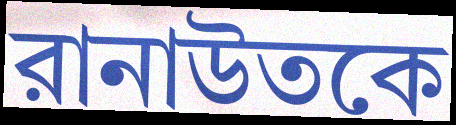
রানাউতকে